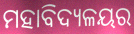
ମହାବିଦ୍ୟଳୟର